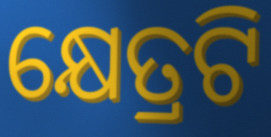
କ୍ଷେତ୍ରଟି